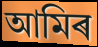
আমিৰ